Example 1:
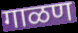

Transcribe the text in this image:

गाळण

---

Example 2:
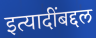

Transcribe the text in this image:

इत्यादींबद्दल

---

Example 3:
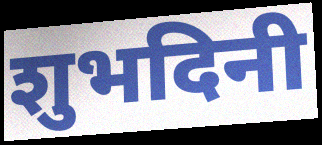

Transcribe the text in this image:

शुभदिनी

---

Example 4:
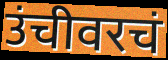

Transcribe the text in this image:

उंचीवरचं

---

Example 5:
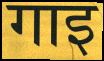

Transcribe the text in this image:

गाइ